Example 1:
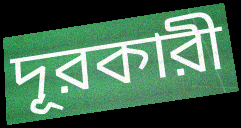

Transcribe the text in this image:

দূরকারী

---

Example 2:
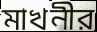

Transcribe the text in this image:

মাখনীর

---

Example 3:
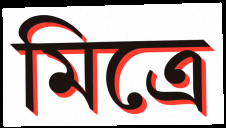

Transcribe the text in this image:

মিত্রে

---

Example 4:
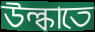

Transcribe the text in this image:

উল্কাতে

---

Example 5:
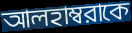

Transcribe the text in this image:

আলহাম্বরাকে